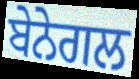
ਬੇਨੇਗਲ